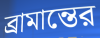
ব্রামান্তের